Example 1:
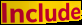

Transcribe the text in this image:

Include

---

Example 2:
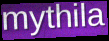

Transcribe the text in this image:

mythila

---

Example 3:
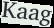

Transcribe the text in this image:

Kaag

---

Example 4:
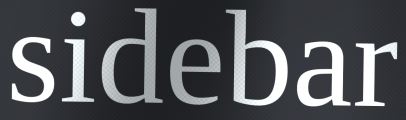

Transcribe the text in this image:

sidebar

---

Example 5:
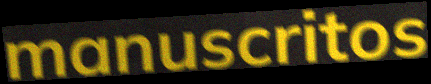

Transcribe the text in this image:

manuscritos